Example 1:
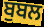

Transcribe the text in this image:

ਬੁਬਲ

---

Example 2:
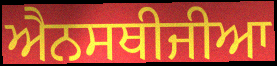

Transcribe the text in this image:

ਐਨਸਥੀਜੀਆ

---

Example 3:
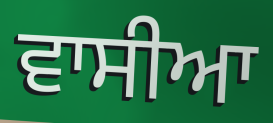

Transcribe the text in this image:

ਵਾਸੀਆ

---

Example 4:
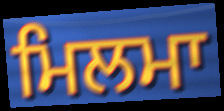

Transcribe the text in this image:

ਮਿਲਮਾ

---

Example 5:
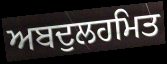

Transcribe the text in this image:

ਅਬਦੁਲਹਮਿਤ